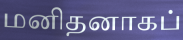
மனிதனாகப்